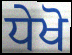
ਧੇਖੋ